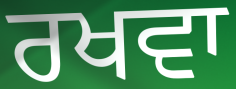
ਰਖਵਾ